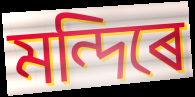
মন্দিৰে